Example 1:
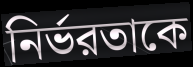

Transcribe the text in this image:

নির্ভরতাকে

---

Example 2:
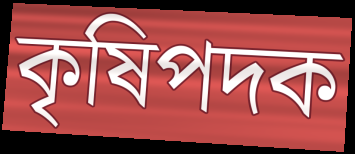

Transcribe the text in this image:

কৃষিপদক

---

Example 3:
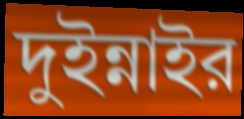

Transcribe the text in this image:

দুইন্নাইর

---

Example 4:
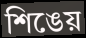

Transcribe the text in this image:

শিঙেয়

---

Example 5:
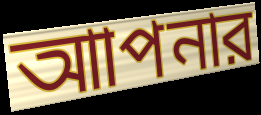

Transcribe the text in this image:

আাপনার